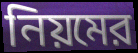
নিয়মের